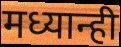
मध्यान्ही